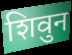
शिवुन